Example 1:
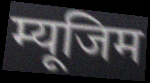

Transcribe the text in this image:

म्यूजिम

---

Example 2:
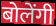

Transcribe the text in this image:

बोलेंगी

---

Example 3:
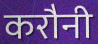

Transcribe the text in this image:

करौनी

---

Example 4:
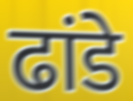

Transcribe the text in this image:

ढांडे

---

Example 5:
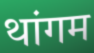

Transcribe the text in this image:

थांगम